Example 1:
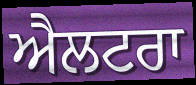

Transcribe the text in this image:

ਐਲਟਰਾ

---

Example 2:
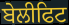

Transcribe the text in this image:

ਬੇਲੀਫਿਟ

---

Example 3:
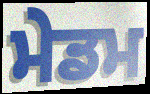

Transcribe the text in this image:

ਮੇਡਮ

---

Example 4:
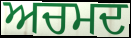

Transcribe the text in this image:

ਅਚਮਦ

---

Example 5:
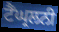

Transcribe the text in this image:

ਟੈਂਘ੍ਰਲਨੀ